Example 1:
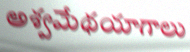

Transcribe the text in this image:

అశ్వమేథయాగాలు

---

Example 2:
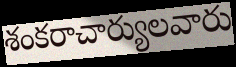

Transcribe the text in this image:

శంకరాచార్యులవారు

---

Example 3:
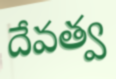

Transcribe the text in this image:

దేవత్వ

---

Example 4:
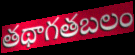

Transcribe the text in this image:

తథాగతబలం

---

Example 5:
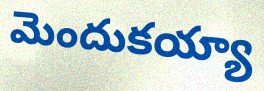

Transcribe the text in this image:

మెందుకయ్యా